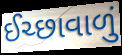
ઈચ્છાવાળું